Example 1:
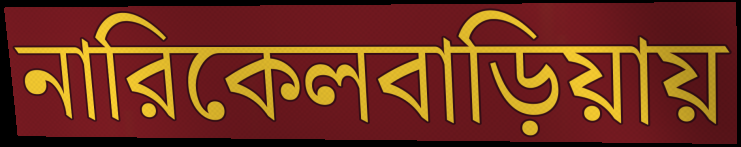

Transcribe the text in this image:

নারিকেলবাড়িয়ায়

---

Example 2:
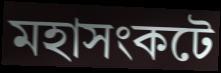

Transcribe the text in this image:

মহাসংকটে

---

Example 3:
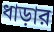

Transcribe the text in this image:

ধাড়ার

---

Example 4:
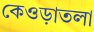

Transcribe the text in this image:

কেওড়াতলা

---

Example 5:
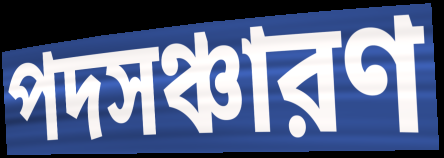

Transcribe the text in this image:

পদসঞ্চারণ